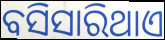
ବସିସାରିଥାଏ